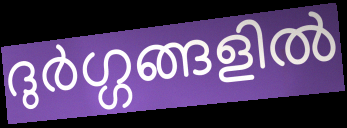
ദുർഗ്ഗങ്ങളിൽ